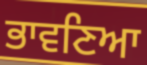
ਭਾਵਣਿਆ